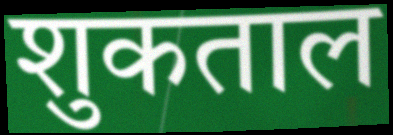
शुकताल